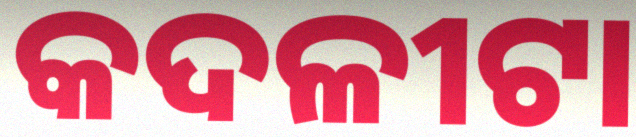
କଦଳୀଟା